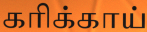
கரிக்காய்